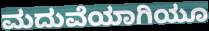
ಮದುವೆಯಾಗಿಯೂ